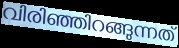
വിരിഞ്ഞിറങ്ങുന്നത്